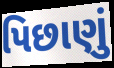
પિછાણું